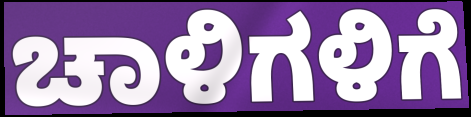
ಚಾಳಿಗಳಿಗೆ